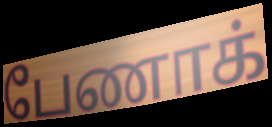
பேணாக்